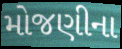
મોજણીના